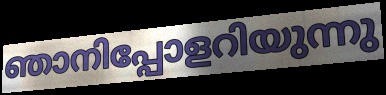
ഞാനിപ്പോളറിയുന്നു